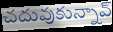
చదువుకున్నావ్